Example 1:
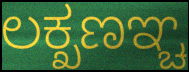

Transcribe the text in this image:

ಲಕ್ಖಣಞ್ಚ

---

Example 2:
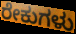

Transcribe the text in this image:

ರೇಕುಗಳು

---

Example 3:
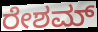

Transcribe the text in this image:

ರೇಶಮ್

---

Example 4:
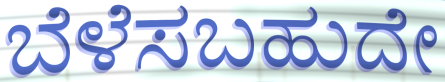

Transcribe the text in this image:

ಬೆಳೆಸಬಹುದೇ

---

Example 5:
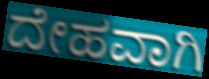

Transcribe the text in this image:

ದೇಹವಾಗಿ